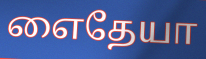
எைதேயா